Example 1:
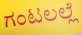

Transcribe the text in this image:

ಗಂಟಲಲ್ಲೆ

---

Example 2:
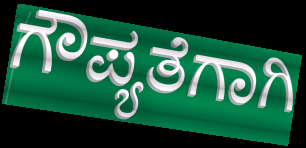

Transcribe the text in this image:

ಗೌಪ್ಯತೆಗಾಗಿ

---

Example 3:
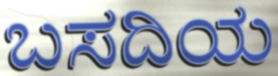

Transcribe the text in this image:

ಬಸದಿಯ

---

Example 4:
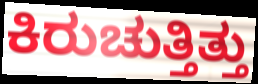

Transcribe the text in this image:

ಕಿರುಚುತ್ತಿತ್ತು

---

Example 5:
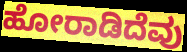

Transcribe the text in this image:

ಹೋರಾಡಿದೆವು